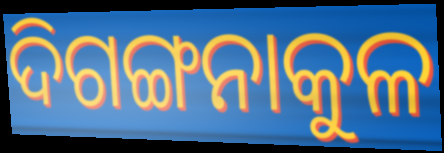
ଦିଗଙ୍ଗନାକୁଳ